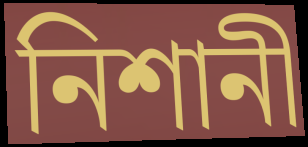
নিশানী